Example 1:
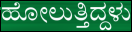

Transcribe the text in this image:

ಹೋಲುತ್ತಿದ್ದಳು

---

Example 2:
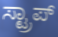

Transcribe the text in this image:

ಸ್ಟ್ರಾಪ್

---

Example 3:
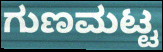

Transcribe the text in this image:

ಗುಣಮಟ್ಟ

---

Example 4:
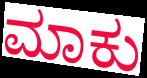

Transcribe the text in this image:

ಮಾಕು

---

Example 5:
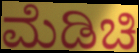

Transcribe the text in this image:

ಮೆಡಿಚಿ